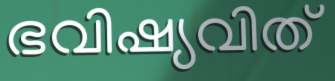
ഭവിഷ്യവിത്